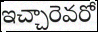
ఇచ్చారెవరో